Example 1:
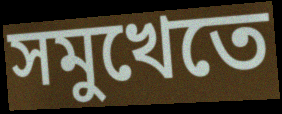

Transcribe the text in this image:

সমুখেতে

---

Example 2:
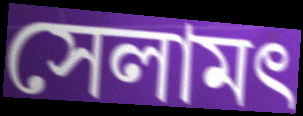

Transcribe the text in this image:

সেলামৎ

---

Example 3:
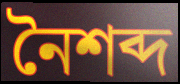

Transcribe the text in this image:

নৈশব্দ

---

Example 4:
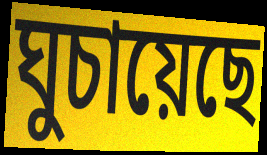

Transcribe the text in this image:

ঘুচায়েছে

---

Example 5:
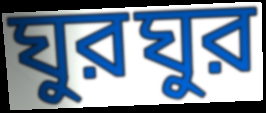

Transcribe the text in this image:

ঘুরঘুর